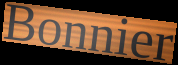
Bonnier